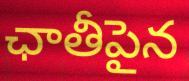
ఛాతీపైన